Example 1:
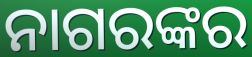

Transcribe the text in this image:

ନାଗରଙ୍କର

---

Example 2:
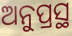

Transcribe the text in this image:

ଅନୁପ୍ରସ୍ଥ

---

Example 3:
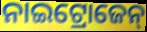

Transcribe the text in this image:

ନାଇଟ୍ରୋଜେନ୍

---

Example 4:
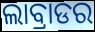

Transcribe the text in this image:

ଲାବ୍ରାଡର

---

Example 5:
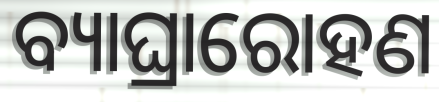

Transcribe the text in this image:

ବ୍ୟାଘ୍ରାରୋହଣ